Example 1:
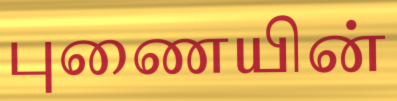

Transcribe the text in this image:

புணையின்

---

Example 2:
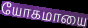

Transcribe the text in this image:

யோகமாயை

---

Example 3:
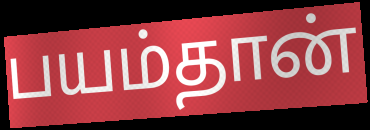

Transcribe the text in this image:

பயம்தான்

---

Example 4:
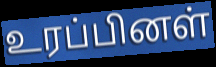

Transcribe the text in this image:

உரப்பினள்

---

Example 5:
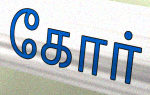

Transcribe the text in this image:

கோர்